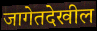
जागेतदेखील